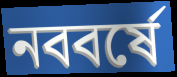
নববর্ষে